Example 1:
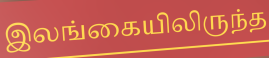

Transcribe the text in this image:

இலங்கையிலிருந்த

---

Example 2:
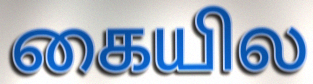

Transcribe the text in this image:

கையில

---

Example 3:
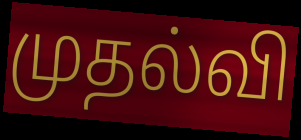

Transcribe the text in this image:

முதல்வி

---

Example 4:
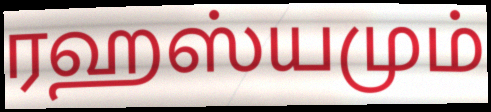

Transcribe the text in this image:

ரஹஸ்யமும்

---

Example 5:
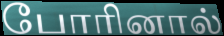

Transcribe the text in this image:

போரினால்